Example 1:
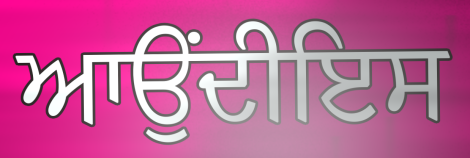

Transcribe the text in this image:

ਆਉਂਦੀਇਸ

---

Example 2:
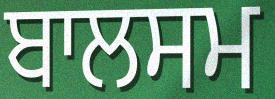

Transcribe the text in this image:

ਬਾਲਸਮ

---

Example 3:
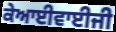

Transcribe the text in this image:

ਕੇਆਈਵਾਈਜੀ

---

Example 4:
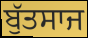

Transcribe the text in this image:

ਬੁੱਤਸਾਜ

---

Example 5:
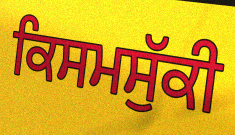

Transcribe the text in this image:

ਕਿਸਮਸੁੱਕੀ